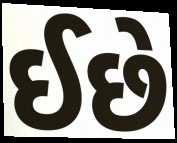
ઈછે